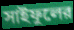
সাইফুলের